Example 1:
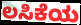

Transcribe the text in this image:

ಲಸಿಕೆಯ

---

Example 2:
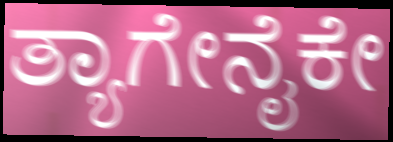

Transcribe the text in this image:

ತ್ಯಾಗೇನೈಕೇ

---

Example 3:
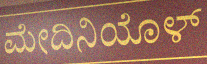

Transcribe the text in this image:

ಮೇದಿನಿಯೊಳ್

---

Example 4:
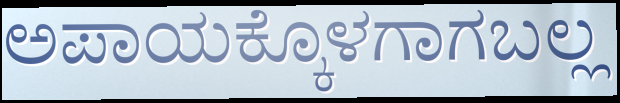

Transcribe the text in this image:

ಅಪಾಯಕ್ಕೊಳಗಾಗಬಲ್ಲ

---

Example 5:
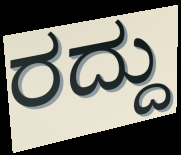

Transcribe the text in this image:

ರದ್ದು